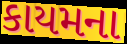
કાયમના